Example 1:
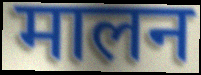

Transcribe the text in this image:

मालन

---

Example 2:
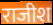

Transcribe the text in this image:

राजीश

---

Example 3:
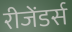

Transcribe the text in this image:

रीजेंडर्स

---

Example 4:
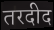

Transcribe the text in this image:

तरदीद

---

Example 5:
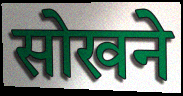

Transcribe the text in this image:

सोखने